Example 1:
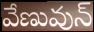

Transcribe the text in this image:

వేణువున్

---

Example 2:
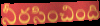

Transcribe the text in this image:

నీరసించింది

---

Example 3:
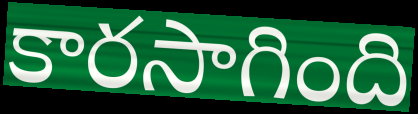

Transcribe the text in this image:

కారసాగింది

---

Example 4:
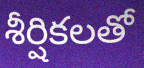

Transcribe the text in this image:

శీర్షికలతో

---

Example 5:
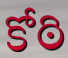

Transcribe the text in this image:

కోఠి